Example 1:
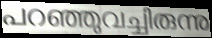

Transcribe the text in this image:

പറഞ്ഞുവച്ചിരുന്നു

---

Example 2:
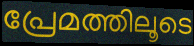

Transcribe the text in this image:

പ്രേമത്തിലൂടെ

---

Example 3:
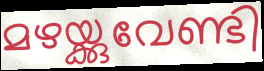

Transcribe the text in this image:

മഴയ്ക്കുവേണ്ടി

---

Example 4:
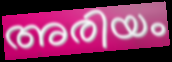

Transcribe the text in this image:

അരിയം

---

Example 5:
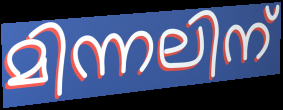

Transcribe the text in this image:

മിന്നലിന്